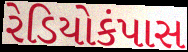
રેડિયોકંપાસ